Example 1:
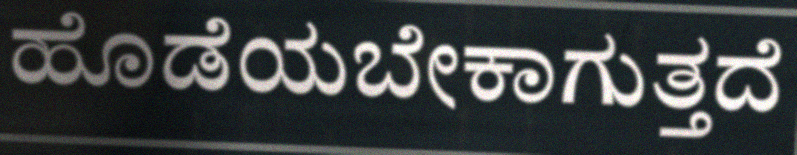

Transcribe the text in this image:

ಹೊಡೆಯಬೇಕಾಗುತ್ತದೆ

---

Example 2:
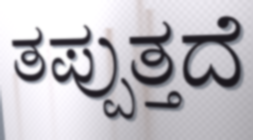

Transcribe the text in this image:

ತಪ್ಪುತ್ತದೆ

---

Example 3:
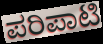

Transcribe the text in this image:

ಪರಿಪಾಟಿ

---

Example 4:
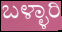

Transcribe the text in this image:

ಬಳ್ಳಾರಿ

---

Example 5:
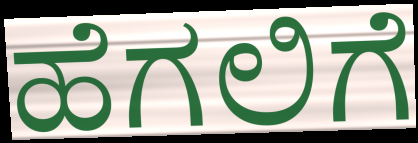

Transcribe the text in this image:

ಹೆಗಲಿಗೆ